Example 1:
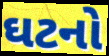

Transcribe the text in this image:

ઘટનો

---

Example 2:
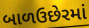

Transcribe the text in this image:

બાળઉછેરમાં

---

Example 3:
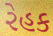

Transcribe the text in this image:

રેહક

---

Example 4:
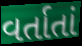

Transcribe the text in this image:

વર્તાતાં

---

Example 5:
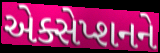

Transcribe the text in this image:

એક્સેપ્શનને